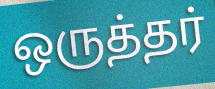
ஒருத்தர்